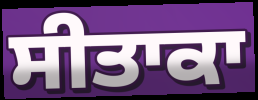
ਸੀਤਾਕਾ